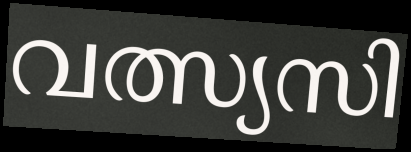
വത്സ്യസി